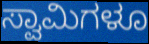
ಸ್ವಾಮಿಗಳೂ